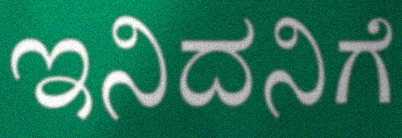
ಇನಿದನಿಗೆ